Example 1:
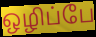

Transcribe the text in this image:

ஒழிப்பே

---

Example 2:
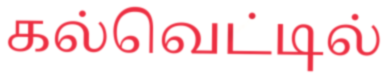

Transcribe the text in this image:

கல்வெட்டில்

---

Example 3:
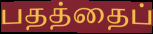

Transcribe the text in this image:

பதத்தைப்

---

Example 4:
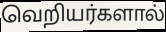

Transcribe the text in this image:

வெறியர்களால்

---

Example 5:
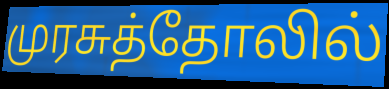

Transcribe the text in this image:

முரசுத்தோலில்